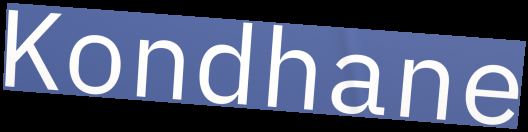
Kondhane